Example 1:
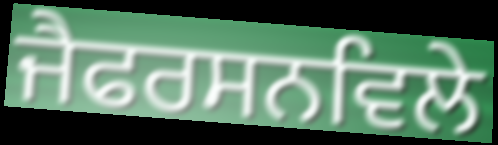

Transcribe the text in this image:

ਜੈਫਰਸਨਵਿਲੇ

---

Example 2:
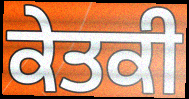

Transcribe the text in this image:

ਕੇਤਕੀ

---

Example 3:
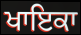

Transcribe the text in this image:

ਖਾਇਕਾ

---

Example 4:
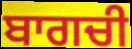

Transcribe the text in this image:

ਬਾਗਚੀ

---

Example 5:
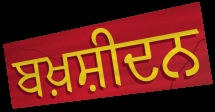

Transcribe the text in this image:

ਬਖ਼ਸ਼ੀਦਨ